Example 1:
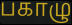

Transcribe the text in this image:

பகாழு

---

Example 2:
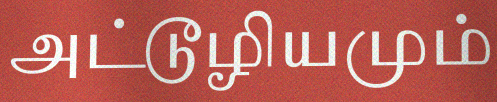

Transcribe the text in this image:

அட்டூழியமும்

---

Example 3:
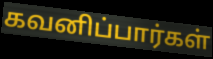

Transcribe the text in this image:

கவனிப்பார்கள்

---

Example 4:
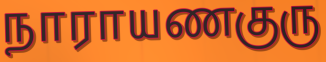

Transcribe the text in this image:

நாராயணகுரு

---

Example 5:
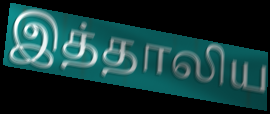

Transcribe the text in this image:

இத்தாலிய